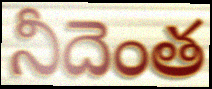
నీదెంత